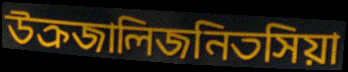
উক্রজালিজনিতসিয়া